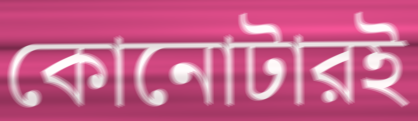
কোনোটারই